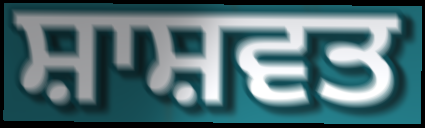
ਸ਼ਾਸ਼ਵਤ